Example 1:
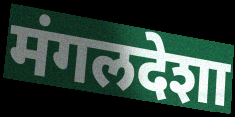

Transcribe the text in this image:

मंगलदेशा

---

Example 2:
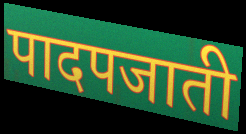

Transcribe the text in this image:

पादपजाती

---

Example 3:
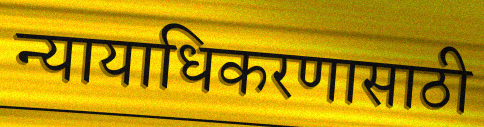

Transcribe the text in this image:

न्यायाधिकरणासाठी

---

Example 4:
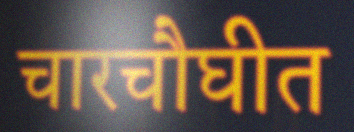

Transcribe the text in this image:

चारचौघीत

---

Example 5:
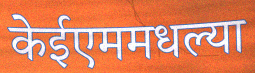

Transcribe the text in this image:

केईएममधल्या